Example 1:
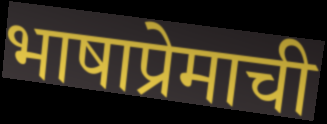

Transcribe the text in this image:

भाषाप्रेमाची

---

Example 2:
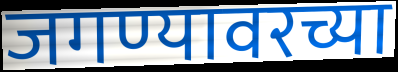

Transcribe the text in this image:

जगण्यावरच्या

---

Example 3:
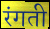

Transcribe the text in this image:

रंगती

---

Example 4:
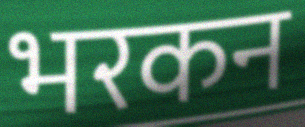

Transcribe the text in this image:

भरकन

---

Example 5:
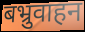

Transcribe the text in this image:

बभ्रुवाहन